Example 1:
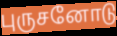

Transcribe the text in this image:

புருசனோடு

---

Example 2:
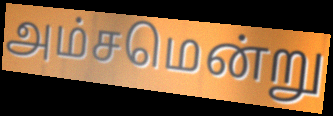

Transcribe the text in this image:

அம்சமென்று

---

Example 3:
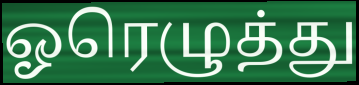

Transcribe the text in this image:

ஓரெழுத்து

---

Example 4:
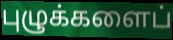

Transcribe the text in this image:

புழுக்களைப்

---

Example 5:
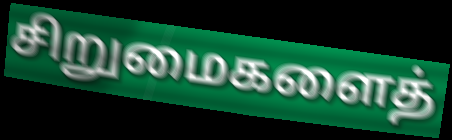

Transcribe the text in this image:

சிறுமைகளைத்